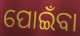
ପୋଇଁବା